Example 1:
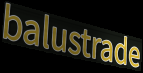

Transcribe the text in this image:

balustrade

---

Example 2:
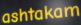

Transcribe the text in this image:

ashtakam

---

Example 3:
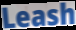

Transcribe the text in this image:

Leash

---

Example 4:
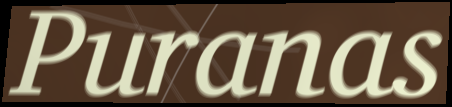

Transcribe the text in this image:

Puranas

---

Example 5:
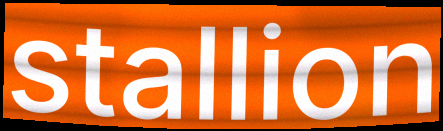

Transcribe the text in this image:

stallion